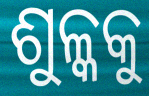
ଶୁଳ୍କକୁ